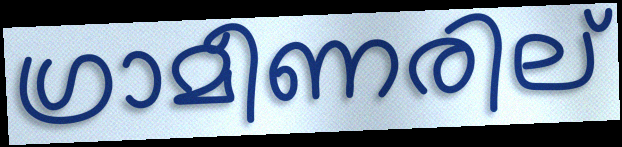
ഗ്രാമീണരില്